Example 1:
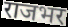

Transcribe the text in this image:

राजभर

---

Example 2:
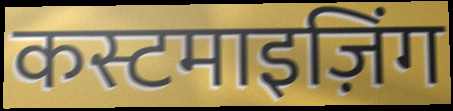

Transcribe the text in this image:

कस्टमाइज़िंग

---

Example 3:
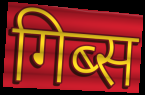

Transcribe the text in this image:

गिब्स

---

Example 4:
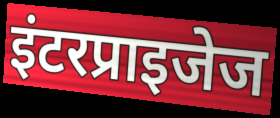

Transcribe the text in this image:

इंटरप्राइजेज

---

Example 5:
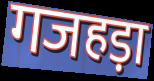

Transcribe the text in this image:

गजहड़ा